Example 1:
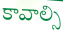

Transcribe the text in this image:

కావాల్సి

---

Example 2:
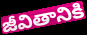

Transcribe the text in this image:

జీవితానికి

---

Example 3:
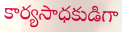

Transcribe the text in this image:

కార్యసాధకుడిగా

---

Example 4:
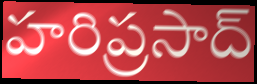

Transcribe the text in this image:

హరిప్రసాద్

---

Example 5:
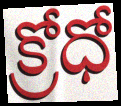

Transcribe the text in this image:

క్రోధో